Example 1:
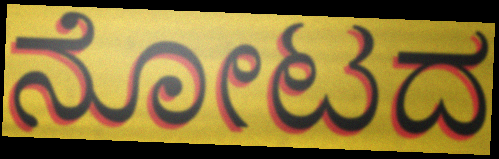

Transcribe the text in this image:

ನೋಟದ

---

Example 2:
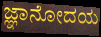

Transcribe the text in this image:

ಜ್ಞಾನೋದಯ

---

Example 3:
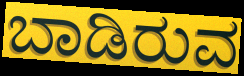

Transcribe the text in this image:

ಬಾಡಿರುವ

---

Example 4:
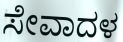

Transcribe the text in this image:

ಸೇವಾದಳ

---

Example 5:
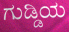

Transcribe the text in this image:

ಗುಡ್ಡಿಯ